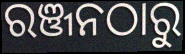
ରଞ୍ଜନଠାରୁ